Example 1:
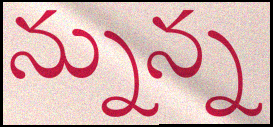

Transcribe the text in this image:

న్నున్న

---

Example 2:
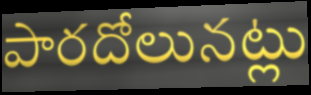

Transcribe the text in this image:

పారదోలునట్లు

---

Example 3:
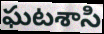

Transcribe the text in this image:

ఘటశాసి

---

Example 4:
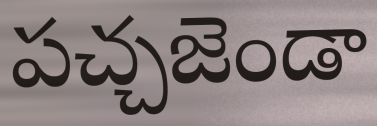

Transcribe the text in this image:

పచ్చజెండా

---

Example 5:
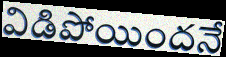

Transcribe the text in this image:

విడిపోయిందనే